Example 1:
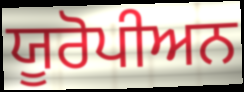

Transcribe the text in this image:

ਯੂਰੋਪੀਅਨ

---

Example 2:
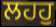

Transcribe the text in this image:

ਲਹਹੁ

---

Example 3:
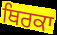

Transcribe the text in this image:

ਥਿਰਕਾ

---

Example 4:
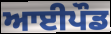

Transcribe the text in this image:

ਆਈਪੌਡ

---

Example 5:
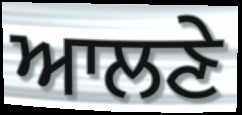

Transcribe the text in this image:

ਆਲਣੇ